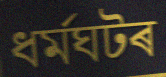
ধৰ্মঘটৰ